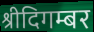
श्रीदिगम्बर